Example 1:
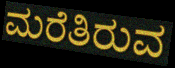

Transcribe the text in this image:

ಮರೆತಿರುವ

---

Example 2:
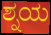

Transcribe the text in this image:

ಶ್ನಯ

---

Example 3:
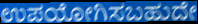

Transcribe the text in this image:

ಉಪಯೋಗಿಸಬಹುದೇ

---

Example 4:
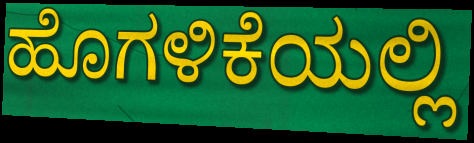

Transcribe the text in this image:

ಹೊಗಳಿಕೆಯಲ್ಲಿ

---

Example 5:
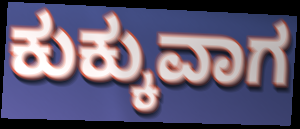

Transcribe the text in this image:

ಕುಕ್ಕುವಾಗ